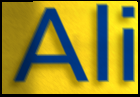
Ali